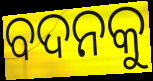
ବଦନକୁ